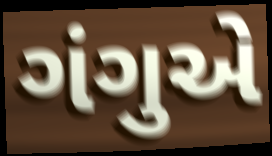
ગંગુએ